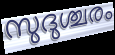
സുദുശ്ചരം